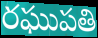
రఘుపతి